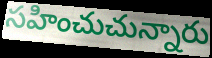
సహించుచున్నారు